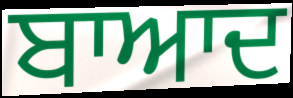
ਬਾਆਦ